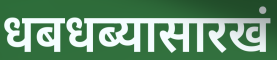
धबधब्यासारखं